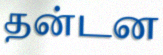
தன்டன